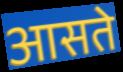
आसते